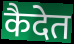
कैदेत